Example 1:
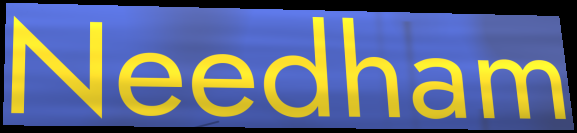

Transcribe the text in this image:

Needham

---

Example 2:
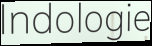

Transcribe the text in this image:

Indologie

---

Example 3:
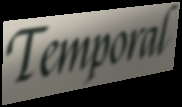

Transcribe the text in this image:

Temporal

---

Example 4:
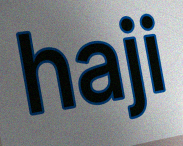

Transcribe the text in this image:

haji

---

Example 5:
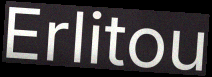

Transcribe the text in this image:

Erlitou